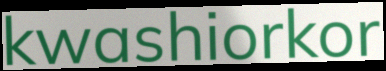
kwashiorkor